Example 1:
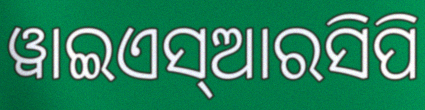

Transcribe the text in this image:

ୱାଇଏସ୍ଆରସିପି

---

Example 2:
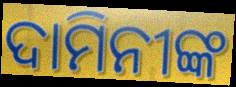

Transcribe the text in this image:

ଦାମିନୀଙ୍କ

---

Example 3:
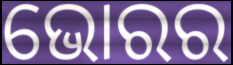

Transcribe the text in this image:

ଭୋରର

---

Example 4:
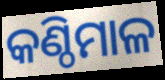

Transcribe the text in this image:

କଣ୍ଠିମାଳ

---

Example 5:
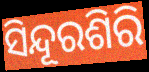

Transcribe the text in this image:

ସିନ୍ଦୂରଶିରି